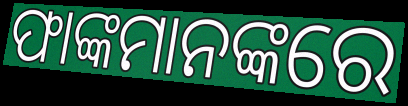
ଫାଙ୍କମାନଙ୍କରେ